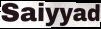
Saiyyad